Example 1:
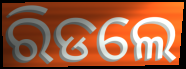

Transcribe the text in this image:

ରିଡଲେ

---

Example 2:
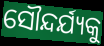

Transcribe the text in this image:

ସୌନ୍ଦର୍ଯ୍ୟକୁ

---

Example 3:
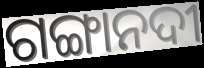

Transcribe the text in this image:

ଗଙ୍ଗାନଦୀ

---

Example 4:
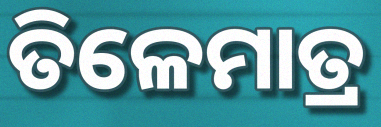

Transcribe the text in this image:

ତିଳେମାତ୍ର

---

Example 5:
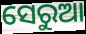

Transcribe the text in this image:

ସେରୁଆ